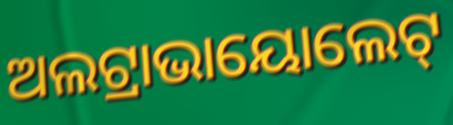
ଅଲଟ୍ରାଭାୟୋଲେଟ୍